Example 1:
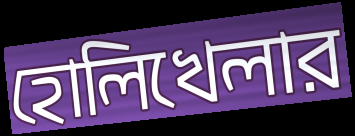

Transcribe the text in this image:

হোলিখেলার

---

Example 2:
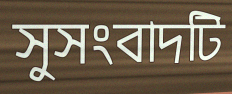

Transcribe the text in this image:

সুসংবাদটি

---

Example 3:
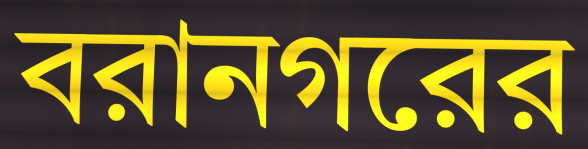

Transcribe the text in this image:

বরানগরের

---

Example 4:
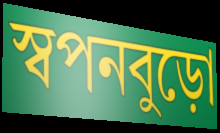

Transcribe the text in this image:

স্বপনবুড়ো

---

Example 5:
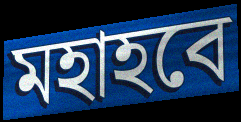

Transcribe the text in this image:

মহাহবে